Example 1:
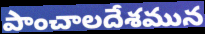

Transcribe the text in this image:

పాంచాలదేశమున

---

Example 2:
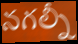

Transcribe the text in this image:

నగల్నీ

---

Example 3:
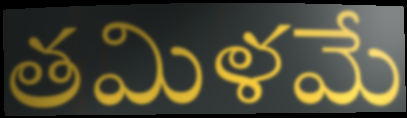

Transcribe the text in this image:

తమిళమే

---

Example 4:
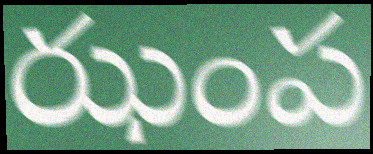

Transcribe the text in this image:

ఝంప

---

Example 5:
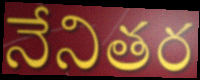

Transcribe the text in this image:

నేనితర